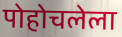
पोहोचलेला